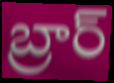
బ్రార్